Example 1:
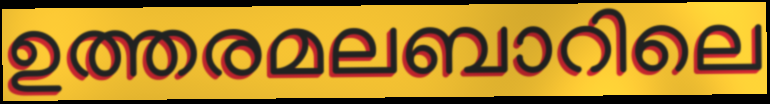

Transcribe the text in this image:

ഉത്തരമലബാറിലെ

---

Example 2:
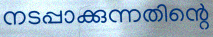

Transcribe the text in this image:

നടപ്പാക്കുന്നതിന്റെ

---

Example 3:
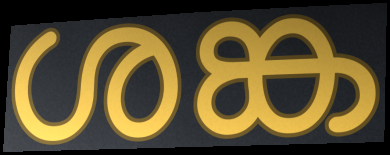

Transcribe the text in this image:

ശങ്ക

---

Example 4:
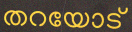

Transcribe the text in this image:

തറയോട്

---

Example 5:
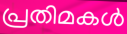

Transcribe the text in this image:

പ്രതിമകൾ